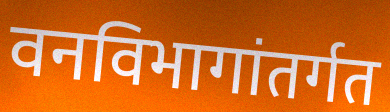
वनविभागांतर्गत